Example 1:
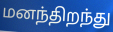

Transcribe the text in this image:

மனந்திறந்து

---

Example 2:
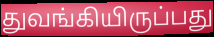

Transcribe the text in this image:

துவங்கியிருப்பது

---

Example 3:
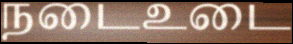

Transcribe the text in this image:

நடைஉடை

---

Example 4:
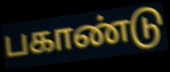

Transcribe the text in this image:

பகாண்டு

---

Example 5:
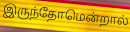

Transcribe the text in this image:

இருந்தோமென்றால்